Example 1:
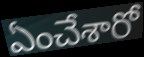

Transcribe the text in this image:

ఏంచేశారో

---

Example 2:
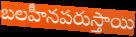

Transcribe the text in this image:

బలహీనపరుస్తాయి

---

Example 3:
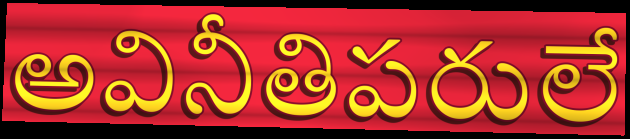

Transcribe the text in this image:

అవినీతిపరులే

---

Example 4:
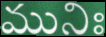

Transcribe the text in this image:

మునిః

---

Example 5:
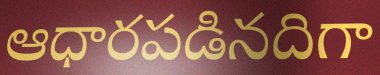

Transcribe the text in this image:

ఆధారపడినదిగా